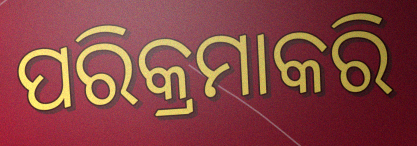
ପରିକ୍ରମାକରି